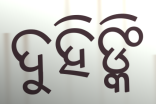
ଦୁହିଙ୍କି